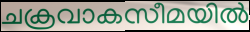
ചക്രവാകസീമയിൽ